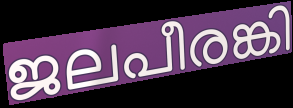
ജലപീരങ്കി